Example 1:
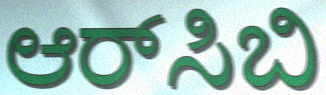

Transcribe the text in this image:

ಆರ್‌ಸಿಬಿ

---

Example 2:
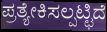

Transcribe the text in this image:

ಪ್ರತ್ಯೇಕಿಸಲ್ಪಟ್ಟಿದೆ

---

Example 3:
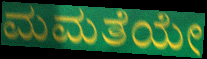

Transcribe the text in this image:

ಮಮತೆಯೇ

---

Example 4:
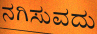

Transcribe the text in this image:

ನಗಿಸುವದು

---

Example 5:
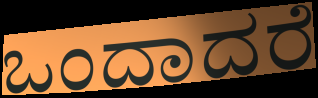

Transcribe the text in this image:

ಒಂದಾದರೆ